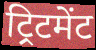
ट्रिटमेंट